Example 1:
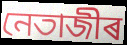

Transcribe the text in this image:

নেতাজীৰ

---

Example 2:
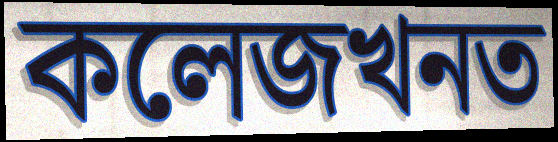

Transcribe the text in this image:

কলেজখনত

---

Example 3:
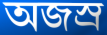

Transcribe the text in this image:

অজস্ৰ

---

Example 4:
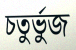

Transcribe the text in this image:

চতুৰ্ভুজ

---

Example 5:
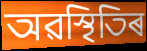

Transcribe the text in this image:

অৱস্থিতিৰ